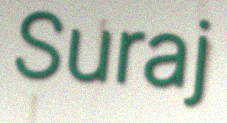
Suraj